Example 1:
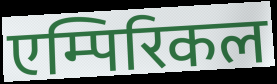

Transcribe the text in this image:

एम्पिरिकल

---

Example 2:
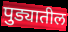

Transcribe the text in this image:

पुड्यातील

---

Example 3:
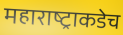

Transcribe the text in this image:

महाराष्ट्राकडेच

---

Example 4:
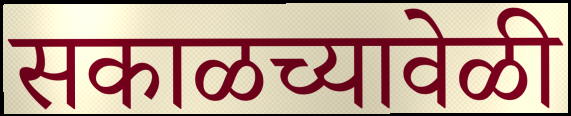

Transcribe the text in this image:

सकाळच्यावेळी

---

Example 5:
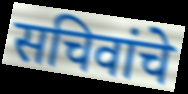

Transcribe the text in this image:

सचिवांचे